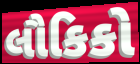
લૌકિકો